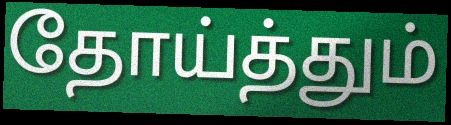
தோய்த்தும்